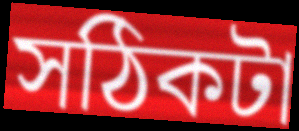
সঠিকটা